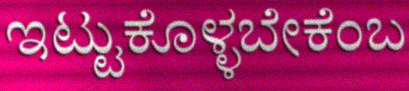
ಇಟ್ಟುಕೊಳ್ಳಬೇಕೆಂಬ